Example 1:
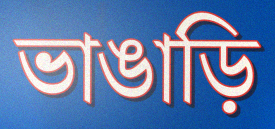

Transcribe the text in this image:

ভাঙাড়ি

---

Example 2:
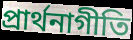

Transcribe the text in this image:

প্রার্থনাগীতি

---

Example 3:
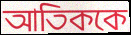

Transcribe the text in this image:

আতিককে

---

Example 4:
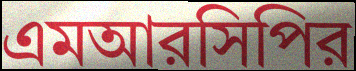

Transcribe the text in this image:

এমআরসিপির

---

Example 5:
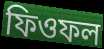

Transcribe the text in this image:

ফিওফল